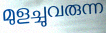
മുളച്ചുവരുന്ന